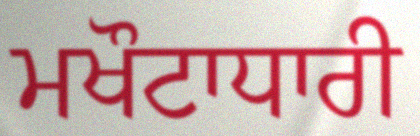
ਮਖੌਟਾਧਾਰੀ